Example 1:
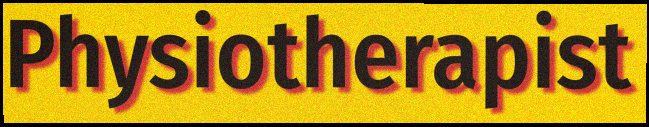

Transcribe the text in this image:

Physiotherapist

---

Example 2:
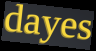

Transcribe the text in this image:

dayes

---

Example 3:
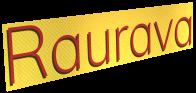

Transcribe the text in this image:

Raurava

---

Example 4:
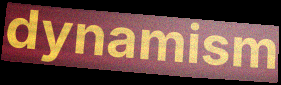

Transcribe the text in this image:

dynamism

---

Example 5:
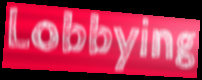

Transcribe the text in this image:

Lobbying